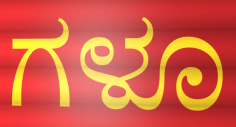
ಗಳೂ